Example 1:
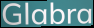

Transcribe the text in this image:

Glabra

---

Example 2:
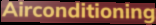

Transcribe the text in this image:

Airconditioning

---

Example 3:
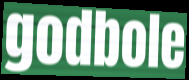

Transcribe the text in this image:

godbole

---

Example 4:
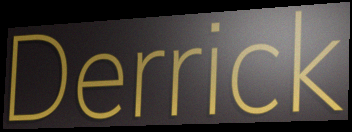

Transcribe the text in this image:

Derrick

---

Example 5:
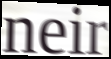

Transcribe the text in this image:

neir